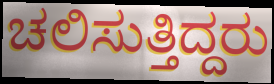
ಚಲಿಸುತ್ತಿದ್ದರು